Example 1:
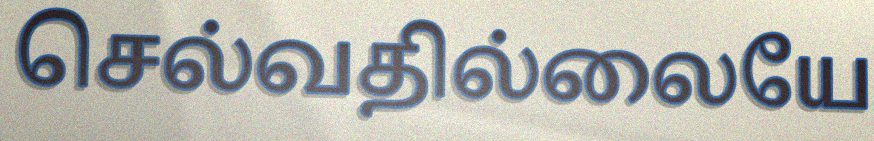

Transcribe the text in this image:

செல்வதில்லையே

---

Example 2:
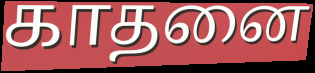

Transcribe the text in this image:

காதனை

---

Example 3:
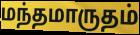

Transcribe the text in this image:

மந்தமாருதம்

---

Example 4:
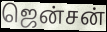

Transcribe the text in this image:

ஜென்சன்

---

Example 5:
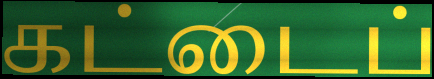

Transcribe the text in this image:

கட்டைப்